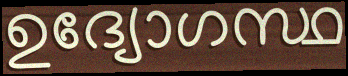
ഉദ്യോഗസ്ഥ